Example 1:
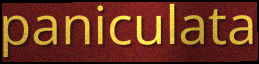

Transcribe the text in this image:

paniculata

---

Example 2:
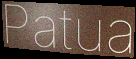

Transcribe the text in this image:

Patua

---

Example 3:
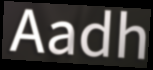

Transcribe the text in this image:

Aadh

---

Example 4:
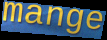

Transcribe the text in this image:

mange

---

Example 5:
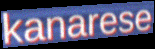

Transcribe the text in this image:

kanarese